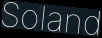
Soland